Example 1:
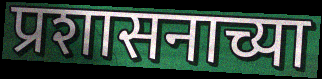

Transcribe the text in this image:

प्रशासनाच्या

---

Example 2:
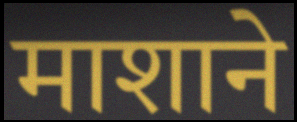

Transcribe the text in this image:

माशाने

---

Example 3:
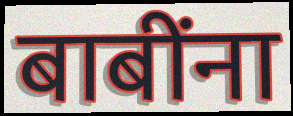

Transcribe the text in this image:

बाबींना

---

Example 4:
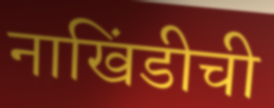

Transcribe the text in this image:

नाखिंडीची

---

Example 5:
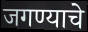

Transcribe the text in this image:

जगण्याचे